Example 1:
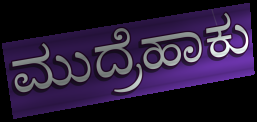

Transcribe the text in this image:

ಮುದ್ರೆಹಾಕು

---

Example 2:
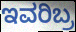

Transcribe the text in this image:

ಇವರಿಬ್ರ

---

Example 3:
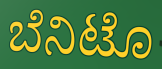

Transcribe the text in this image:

ಬೆನಿಟೊ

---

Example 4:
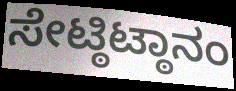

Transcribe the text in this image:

ಸೇಟ್ಠಿಟ್ಠಾನಂ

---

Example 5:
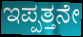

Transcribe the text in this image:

ಇಪ್ಪತ್ತನೇ